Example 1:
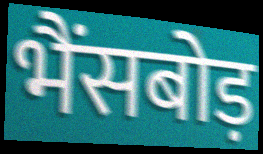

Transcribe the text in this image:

भैंसबोड़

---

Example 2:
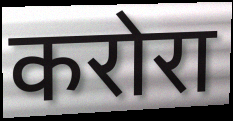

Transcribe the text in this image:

करोरा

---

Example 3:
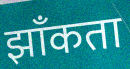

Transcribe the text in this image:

झाँकता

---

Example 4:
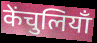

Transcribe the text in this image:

केंचुलियाँ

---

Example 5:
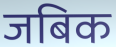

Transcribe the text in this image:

जबिक